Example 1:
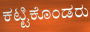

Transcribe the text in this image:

ಕಟ್ಟಿಕೊಂಡರು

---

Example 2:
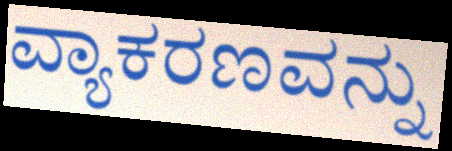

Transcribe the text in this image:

ವ್ಯಾಕರಣವನ್ನು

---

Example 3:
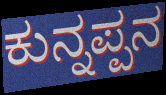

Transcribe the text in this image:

ಕುನ್ನಪ್ಪನ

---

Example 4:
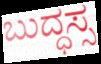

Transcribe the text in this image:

ಬುದ್ಧಸ್ಸ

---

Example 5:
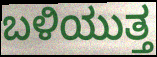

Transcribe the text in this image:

ಬಳಿಯುತ್ತ